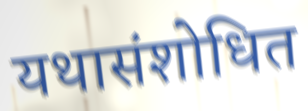
यथासंशोधित